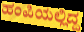
ಹಂಪಿಯಲ್ಲಿದ್ದ